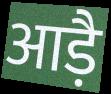
आड़ै